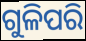
ଗୁଳିପରି